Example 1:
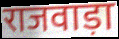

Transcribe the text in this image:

राजवाड़ा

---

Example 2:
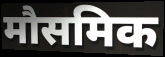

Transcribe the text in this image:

मौसमिक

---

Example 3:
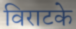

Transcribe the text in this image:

विराटके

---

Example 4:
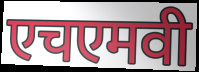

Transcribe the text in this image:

एचएमवी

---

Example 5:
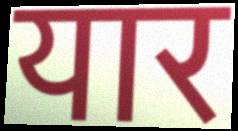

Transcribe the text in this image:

यार